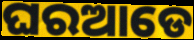
ଘରଆଡେ